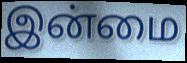
இன்மை